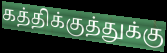
கத்திக்குத்துக்கு